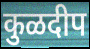
कुळदीप